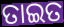
ତାଇତ